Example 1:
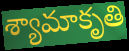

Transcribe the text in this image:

శ్యామాకృతి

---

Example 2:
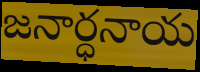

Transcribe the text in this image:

జనార్ధనాయ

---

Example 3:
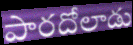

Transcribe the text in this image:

పారదోలాడు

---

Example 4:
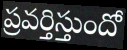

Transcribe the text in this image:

ప్రవర్తిస్తుందో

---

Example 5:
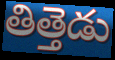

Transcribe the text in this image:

తిత్తెడు